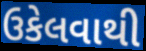
ઉકેલવાથી